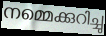
നമ്മെക്കുറിച്ചു